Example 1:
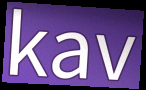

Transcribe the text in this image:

kav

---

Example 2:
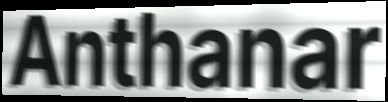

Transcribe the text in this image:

Anthanar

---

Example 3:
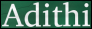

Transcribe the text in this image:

Adithi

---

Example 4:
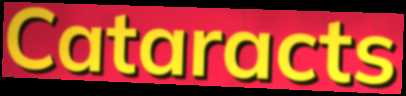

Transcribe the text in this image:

Cataracts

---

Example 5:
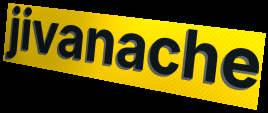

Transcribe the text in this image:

jivanache